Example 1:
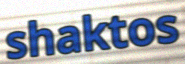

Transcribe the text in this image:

shaktos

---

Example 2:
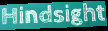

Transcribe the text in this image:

Hindsight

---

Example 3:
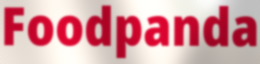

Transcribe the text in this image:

Foodpanda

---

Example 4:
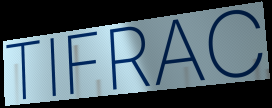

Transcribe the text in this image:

TIFRAC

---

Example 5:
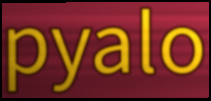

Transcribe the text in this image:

pyalo